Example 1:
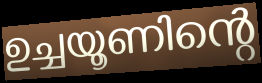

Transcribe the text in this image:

ഉച്ചയൂണിന്റെ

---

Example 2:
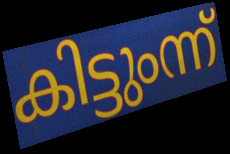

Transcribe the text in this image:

കിട്ടുംന്ന്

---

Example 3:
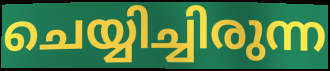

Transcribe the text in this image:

ചെയ്യിച്ചിരുന്ന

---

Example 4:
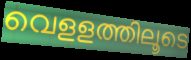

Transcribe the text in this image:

വെളളത്തിലൂടെ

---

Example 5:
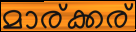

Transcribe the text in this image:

മാര്ക്കര്